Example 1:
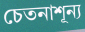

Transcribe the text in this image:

চেতনাশূন্য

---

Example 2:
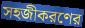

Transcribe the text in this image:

সহজীকরণের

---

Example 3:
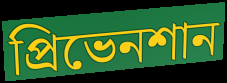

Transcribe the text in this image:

প্রিভেনশান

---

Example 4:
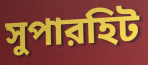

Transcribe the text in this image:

সুপারহিট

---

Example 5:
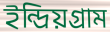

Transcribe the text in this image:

ইন্দ্রিয়গ্রাম